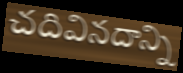
చదివినదాన్ని